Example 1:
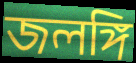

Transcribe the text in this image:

জলঙ্গি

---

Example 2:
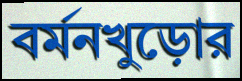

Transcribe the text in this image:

বর্মনখুড়োর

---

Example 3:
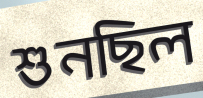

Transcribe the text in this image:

শুনছিল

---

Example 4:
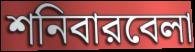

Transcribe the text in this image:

শনিবারবেলা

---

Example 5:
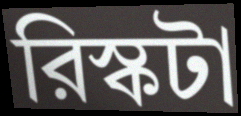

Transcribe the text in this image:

রিস্কটা